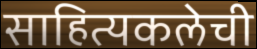
साहित्यकलेची